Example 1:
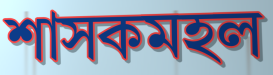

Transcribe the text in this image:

শাসকমহল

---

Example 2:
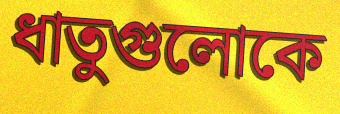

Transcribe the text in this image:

ধাতুগুলোকে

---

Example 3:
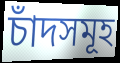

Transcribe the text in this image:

চাঁদসমূহ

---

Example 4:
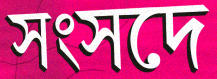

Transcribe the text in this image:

সংসদে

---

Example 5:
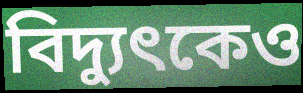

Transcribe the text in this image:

বিদ্যুৎকেও